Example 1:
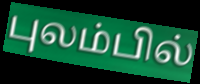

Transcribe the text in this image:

புலம்பில்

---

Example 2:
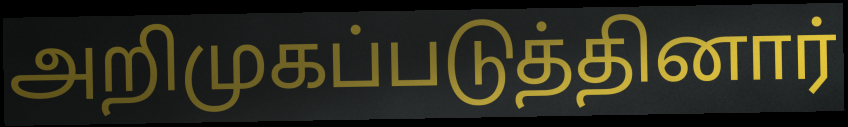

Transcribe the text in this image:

அறிமுகப்படுத்தினார்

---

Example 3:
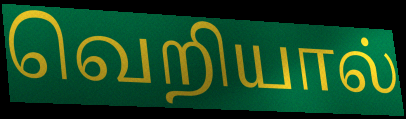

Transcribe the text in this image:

வெறியால்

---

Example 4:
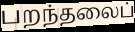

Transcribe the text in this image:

பறந்தலைப்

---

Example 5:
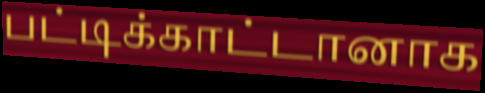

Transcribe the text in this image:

பட்டிக்காட்டானாக